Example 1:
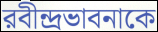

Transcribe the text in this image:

রবীন্দ্রভাবনাকে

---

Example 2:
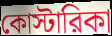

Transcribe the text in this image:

কোস্টারিকা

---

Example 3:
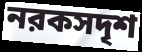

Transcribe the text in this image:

নরকসদৃশ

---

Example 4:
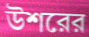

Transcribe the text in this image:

উশরের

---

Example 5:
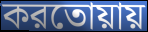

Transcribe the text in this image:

করতোয়ায়